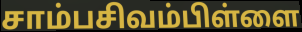
சாம்பசிவம்பிள்ளை